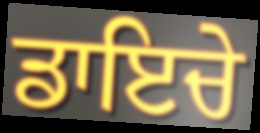
ਡਾਇਚੇ